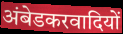
अंबेडकरवादियों